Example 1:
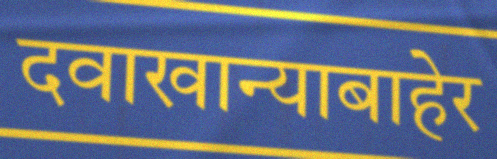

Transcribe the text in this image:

दवाखान्याबाहेर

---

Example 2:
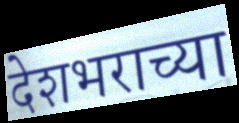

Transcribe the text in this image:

देशभराच्या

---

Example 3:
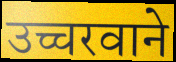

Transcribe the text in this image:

उच्चरवाने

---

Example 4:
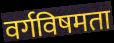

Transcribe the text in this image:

वर्गविषमता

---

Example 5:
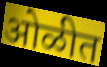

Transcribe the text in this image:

ओळीत